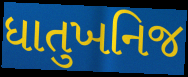
ધાતુખનિજ